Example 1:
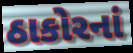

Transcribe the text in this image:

ઠાકોરનાં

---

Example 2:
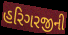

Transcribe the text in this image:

હરિગરજીની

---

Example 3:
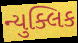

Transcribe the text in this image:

ન્યુક્લિક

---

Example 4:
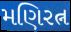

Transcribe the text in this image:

મણિરત્ન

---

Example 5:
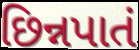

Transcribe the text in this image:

છિન્નપાતં